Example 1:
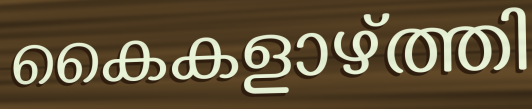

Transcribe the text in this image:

കൈകളാഴ്ത്തി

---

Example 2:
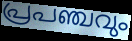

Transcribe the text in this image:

പ്രപഞ്ചവും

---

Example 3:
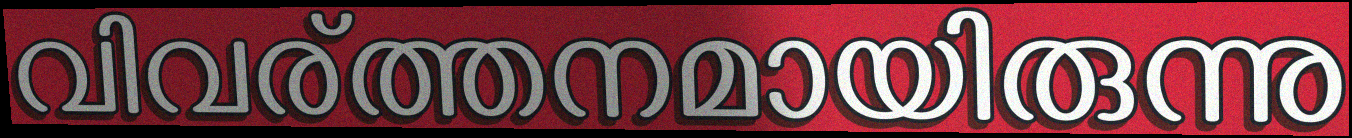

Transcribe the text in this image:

വിവര്ത്തനമായിരുന്നു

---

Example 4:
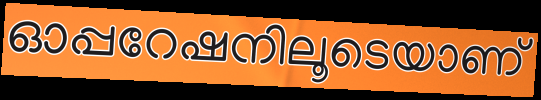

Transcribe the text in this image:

ഓപ്പറേഷനിലൂടെയാണ്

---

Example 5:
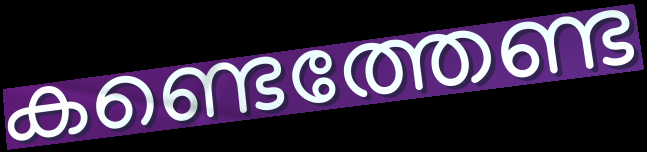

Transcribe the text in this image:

കണ്ടെത്തേണ്ട